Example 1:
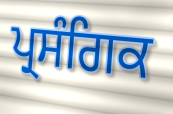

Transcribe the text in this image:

ਪ੍ਰਸੰਗਿਕ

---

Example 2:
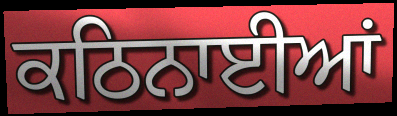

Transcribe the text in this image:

ਕਠਿਨਾਈਆਂ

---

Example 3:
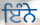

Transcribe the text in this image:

ਇੰਨੇ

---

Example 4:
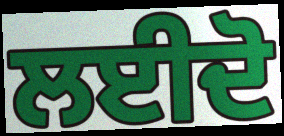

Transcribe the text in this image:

ਲਈਦੋ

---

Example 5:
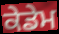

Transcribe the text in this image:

ਕੇਡੇਮ